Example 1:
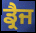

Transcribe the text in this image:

ਡ੍ਰੈਜ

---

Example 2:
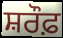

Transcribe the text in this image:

ਸ਼ਰੌਫ਼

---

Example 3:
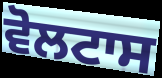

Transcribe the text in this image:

ਵੋਲਟਾਸ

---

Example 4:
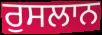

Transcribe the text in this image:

ਰੁਸਲਾਨ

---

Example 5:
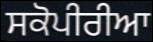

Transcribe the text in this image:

ਸਕੋਪੀਰੀਆ